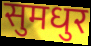
सुमधुर